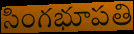
సింగభూపతి